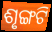
ଶୃଙ୍ଗଟି